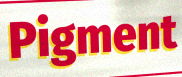
Pigment